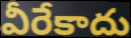
వీరేకాదు